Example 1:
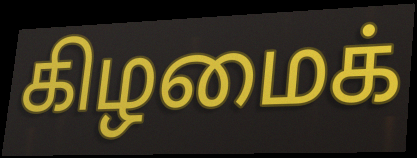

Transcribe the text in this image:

கிழமைக்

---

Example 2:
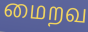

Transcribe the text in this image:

மைறவ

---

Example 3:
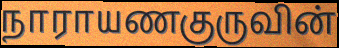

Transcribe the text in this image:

நாராயணகுருவின்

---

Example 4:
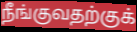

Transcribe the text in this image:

நீங்குவதற்குக்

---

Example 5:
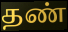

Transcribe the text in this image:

தண்